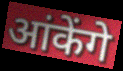
आंकेंगे